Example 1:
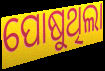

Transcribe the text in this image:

ପୋଷୁଥିଲା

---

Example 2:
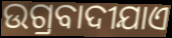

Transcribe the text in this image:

ଉଗ୍ରବାଦୀଯାଏ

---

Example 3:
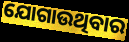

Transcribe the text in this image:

ଯୋଗାଉଥିବାର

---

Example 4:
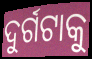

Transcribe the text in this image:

ଦୁର୍ଗଟାକୁ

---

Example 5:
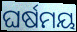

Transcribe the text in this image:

ଘର୍ଷମୟ